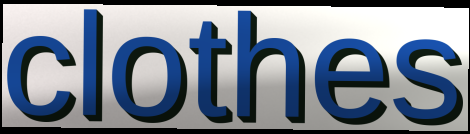
clothes